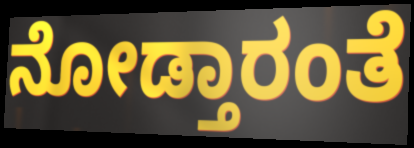
ನೋಡ್ತಾರಂತೆ